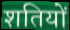
शतियों